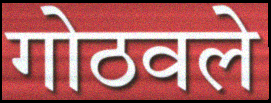
गोठवले